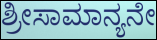
ಶ್ರೀಸಾಮಾನ್ಯನೇ